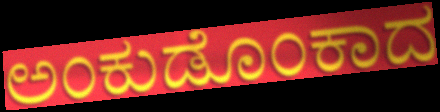
ಅಂಕುಡೊಂಕಾದ